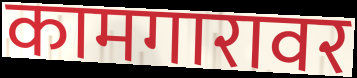
कामगारावर